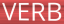
VERB